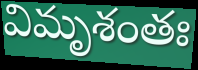
విమృశంతః